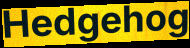
Hedgehog